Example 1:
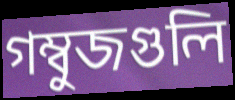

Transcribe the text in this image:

গম্বুজগুলি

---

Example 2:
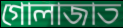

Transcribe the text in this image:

গোলাজাত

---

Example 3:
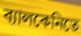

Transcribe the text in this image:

ব্যালকেনিতে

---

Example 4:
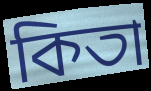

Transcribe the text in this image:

কিতা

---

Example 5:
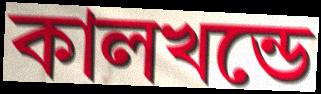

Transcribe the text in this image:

কালখন্ডে